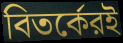
বিতর্কেরই